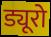
ड्यूरो